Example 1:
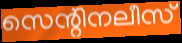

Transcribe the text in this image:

സെന്റിനലീസ്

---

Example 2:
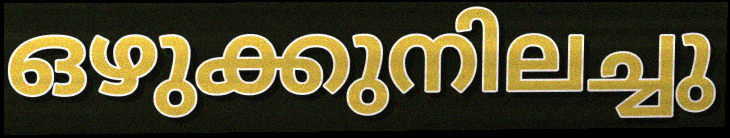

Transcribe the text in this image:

ഒഴുക്കുനിലച്ചു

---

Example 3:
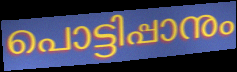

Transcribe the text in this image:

പൊട്ടിപ്പാനും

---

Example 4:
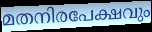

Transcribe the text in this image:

മതനിരപേക്ഷവും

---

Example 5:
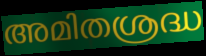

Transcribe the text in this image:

അമിതശ്രദ്ധ